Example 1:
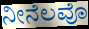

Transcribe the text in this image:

ನೀನೆಲವೊ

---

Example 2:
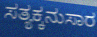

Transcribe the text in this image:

ಸತ್ಯಕ್ಕನುಸಾರ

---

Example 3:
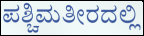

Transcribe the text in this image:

ಪಶ್ಚಿಮತೀರದಲ್ಲಿ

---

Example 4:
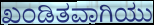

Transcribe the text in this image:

ಖಂಡಿತವಾಗಿಯು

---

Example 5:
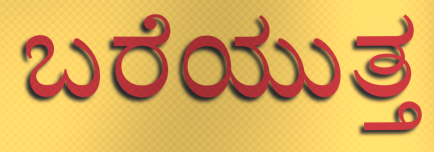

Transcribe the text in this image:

ಬರೆಯುತ್ತ